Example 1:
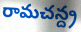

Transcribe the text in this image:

రామచన్ద్ర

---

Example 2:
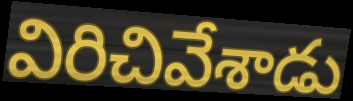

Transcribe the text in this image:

విరిచివేశాడు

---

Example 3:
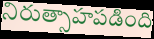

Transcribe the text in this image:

నిరుత్సాహపడింది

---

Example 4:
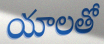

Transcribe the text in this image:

యాలతో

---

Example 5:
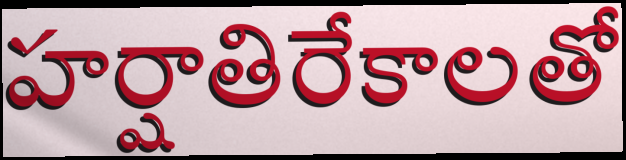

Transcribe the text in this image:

హర్షాతిరేకాలతో